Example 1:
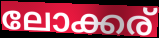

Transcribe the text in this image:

ലോക്കര്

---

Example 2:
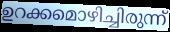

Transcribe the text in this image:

ഉറക്കമൊഴിച്ചിരുന്ന്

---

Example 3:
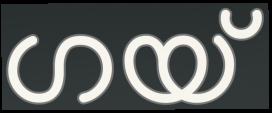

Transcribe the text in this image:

ഗയ്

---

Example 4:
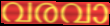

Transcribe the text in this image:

വരവാ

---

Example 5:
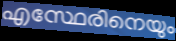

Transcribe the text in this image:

എസ്ഥേരിനെയും